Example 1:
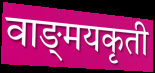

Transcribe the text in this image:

वाङ्‌मयकृती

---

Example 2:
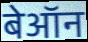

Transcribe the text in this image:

बेऑन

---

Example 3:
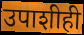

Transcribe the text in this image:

उपाशीही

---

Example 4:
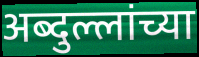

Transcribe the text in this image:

अब्दुल्लांच्या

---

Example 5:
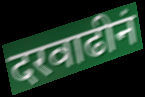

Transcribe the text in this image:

दरवाढीनं